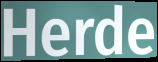
Herde